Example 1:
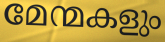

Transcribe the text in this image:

മേന്മകളും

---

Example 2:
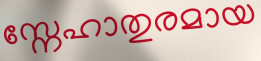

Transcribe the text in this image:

സ്നേഹാതുരമായ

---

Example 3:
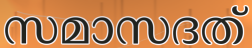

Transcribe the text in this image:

സമാസദത്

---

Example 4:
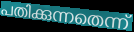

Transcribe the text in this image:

പതിക്കുന്നതെന്ന്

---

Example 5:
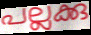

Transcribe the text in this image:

പല്ലക്കു